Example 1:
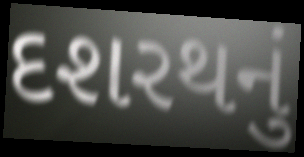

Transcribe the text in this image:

દશરથનું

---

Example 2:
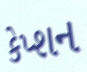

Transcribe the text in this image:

કેપ્શન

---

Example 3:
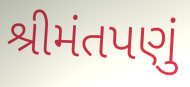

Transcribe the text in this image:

શ્રીમંતપણું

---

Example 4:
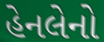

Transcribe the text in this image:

હેનલેનો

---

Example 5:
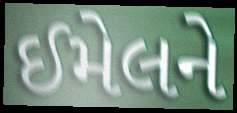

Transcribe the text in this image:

ઈમેલને